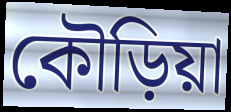
কৌড়িয়া